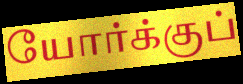
யோர்க்குப்